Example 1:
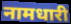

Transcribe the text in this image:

नामधारी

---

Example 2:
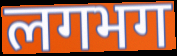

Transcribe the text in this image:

लगभग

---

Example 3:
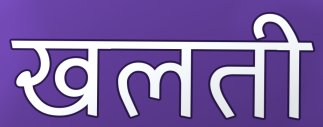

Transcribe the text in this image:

खलती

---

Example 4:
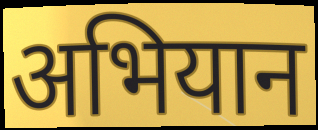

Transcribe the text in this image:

अभियान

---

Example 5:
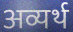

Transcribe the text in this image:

अव्यर्थ